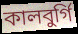
কালবুর্গি